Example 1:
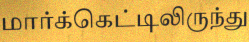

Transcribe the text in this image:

மார்க்கெட்டிலிருந்து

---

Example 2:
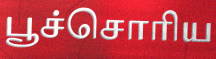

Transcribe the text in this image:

பூச்சொரிய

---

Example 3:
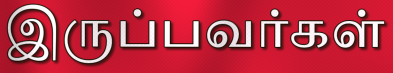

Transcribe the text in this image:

இருப்பவர்கள்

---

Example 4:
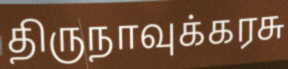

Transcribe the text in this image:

திருநாவுக்கரசு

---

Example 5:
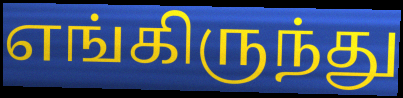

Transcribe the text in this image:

எங்கிருந்து